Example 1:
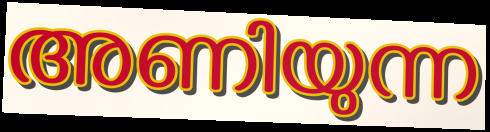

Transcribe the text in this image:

അണിയുന്ന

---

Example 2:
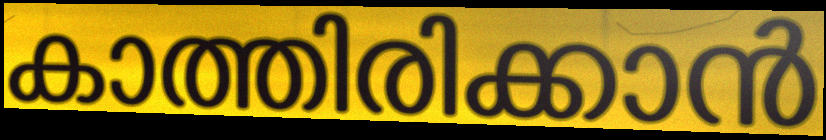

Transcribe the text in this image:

കാത്തിരിക്കാൻ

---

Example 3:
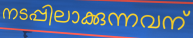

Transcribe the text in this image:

നടപ്പിലാക്കുന്നവന്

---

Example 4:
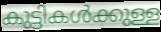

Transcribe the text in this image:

കുട്ടികൾക്കുള്ള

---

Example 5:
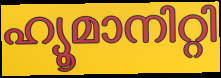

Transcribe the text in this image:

ഹ്യൂമാനിറ്റി